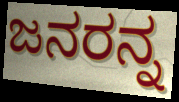
ಜನರನ್ನ